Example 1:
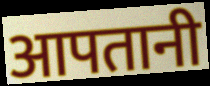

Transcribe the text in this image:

आपतानी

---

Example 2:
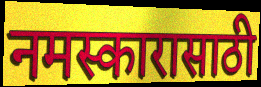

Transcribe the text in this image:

नमस्कारासाठी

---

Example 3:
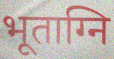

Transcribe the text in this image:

भूताग्नि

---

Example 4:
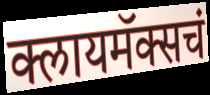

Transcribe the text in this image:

क्लायमॅक्सचं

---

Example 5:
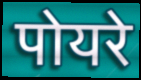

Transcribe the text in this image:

पोयरे